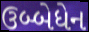
ઉબ્બેધેન